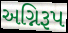
અગ્નિરૂપ